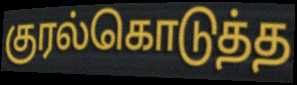
குரல்கொடுத்த